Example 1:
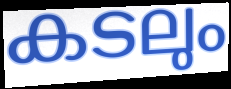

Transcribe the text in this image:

കടലും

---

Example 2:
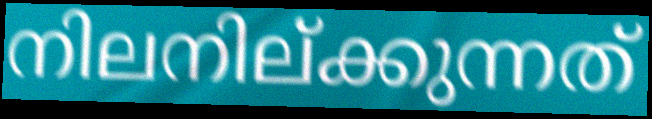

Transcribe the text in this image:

നിലനില്ക്കുന്നത്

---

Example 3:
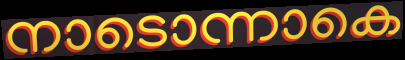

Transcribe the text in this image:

നാടൊന്നാകെ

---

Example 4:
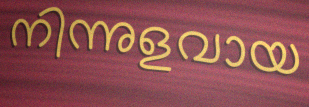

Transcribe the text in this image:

നിന്നുളവായ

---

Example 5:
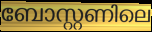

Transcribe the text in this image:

ബോസ്റ്റണിലെ